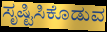
ಸೃಷ್ಟಿಸಿಕೊಡುವ